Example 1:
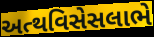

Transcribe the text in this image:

અત્થવિસેસલાભે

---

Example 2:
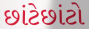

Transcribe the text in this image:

છાંટેછાંટો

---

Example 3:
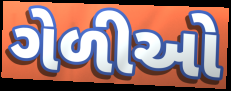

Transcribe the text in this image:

ગેળીઓ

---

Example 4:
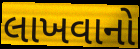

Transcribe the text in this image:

લાખવાનો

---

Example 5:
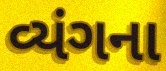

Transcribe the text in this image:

વ્યંગના